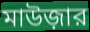
মাউজ়ার